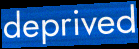
deprived